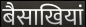
बैसाखियां